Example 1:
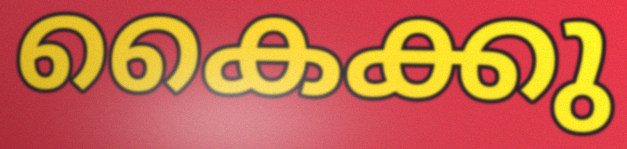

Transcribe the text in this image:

കൈക്കു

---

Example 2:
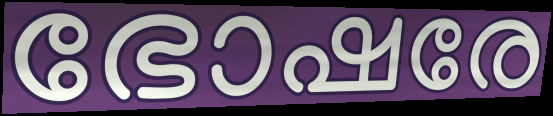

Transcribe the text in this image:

ഭോഷരേ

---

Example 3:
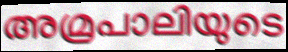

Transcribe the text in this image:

അമ്രപാലിയുടെ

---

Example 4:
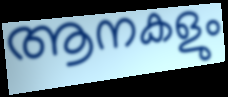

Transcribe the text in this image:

ആനകളും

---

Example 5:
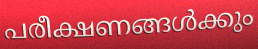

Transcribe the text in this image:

പരീക്ഷണങ്ങൾക്കും